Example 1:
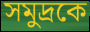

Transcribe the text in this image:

সমুদ্রকে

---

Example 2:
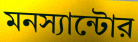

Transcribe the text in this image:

মনস্যান্টোর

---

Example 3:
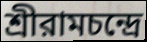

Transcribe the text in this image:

শ্রীরামচন্দ্রে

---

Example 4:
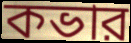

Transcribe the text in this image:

কভার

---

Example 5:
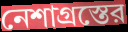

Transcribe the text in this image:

নেশাগ্রস্তের